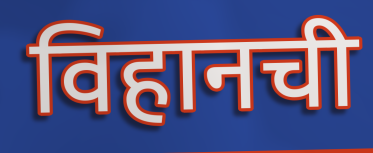
विहानची